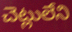
చెట్లులేని